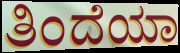
ತಿಂದೆಯಾ